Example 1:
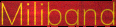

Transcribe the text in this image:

Miliband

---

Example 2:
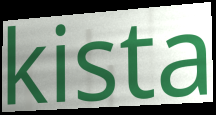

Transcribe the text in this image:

kista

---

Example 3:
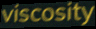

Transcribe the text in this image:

viscosity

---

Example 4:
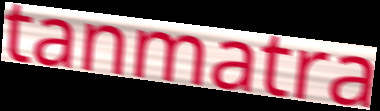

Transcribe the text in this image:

tanmatra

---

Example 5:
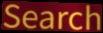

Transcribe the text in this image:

Search